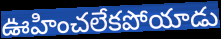
ఊహించలేకపోయాడు